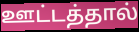
ஊட்டத்தால்